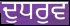
ਦੁਧਰੁਵ